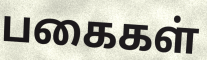
பகைகள்